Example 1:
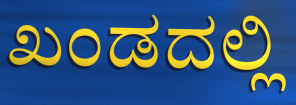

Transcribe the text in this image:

ಖಂಡದಲ್ಲಿ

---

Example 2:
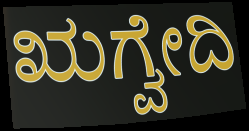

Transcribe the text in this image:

ಋಗ್ವೇದಿ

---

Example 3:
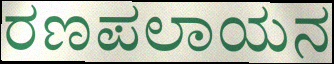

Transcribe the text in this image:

ರಣಪಲಾಯನ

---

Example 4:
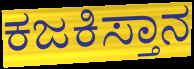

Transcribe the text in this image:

ಕಜಕಿಸ್ತಾನ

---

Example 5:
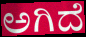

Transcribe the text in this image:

ಅಗಿದೆ